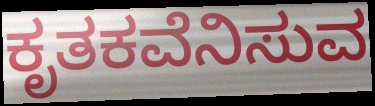
ಕೃತಕವೆನಿಸುವ